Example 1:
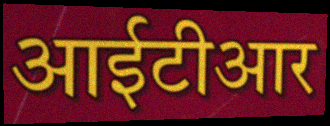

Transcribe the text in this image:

आईटीआर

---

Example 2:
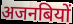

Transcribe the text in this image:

अजनबियों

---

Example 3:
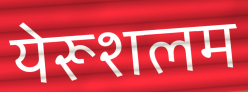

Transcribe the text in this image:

येरूशलम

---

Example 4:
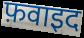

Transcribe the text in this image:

फ़वाइद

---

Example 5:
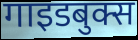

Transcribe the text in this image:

गाइडबुक्स